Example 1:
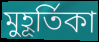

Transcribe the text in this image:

মুহূর্তিকা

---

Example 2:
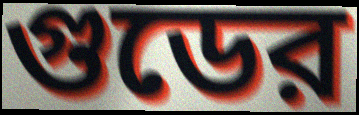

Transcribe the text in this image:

গুডের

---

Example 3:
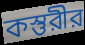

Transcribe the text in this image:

কস্তুরীর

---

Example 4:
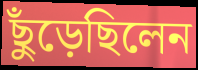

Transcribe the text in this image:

ছুঁড়েছিলেন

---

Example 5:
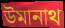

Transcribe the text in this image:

উমানাথ